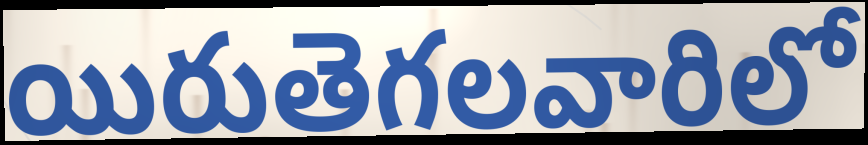
యిరుతెగలవారిలో